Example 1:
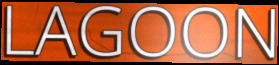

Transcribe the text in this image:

LAGOON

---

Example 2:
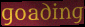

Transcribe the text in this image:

goading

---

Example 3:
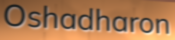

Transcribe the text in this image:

Oshadharon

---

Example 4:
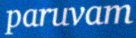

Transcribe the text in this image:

paruvam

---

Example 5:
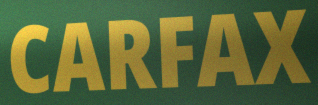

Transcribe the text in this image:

CARFAX